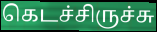
கெடச்சிருச்சு